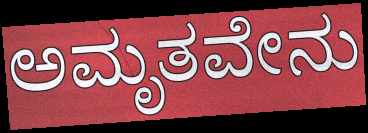
ಅಮೃತವೇನು